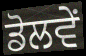
ਡੋਲਵੇਂ